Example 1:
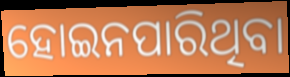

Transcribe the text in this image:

ହୋଇନପାରିଥିବା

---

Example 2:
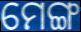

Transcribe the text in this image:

ମେଙ୍ଗ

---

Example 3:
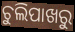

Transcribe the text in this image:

ଚୁଲିପାଖରୁ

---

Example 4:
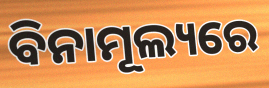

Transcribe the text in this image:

ବିନାମୂଲ୍ୟରେ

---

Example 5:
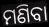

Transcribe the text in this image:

ମଣିବା